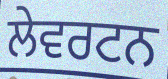
ਲੇਵਰਟਨ